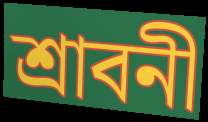
শ্রাবনী